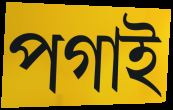
পগাই